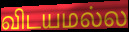
விடயமல்ல